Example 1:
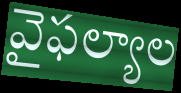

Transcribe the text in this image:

వైఫల్యాల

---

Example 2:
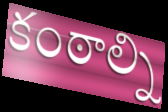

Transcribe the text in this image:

కంఠాల్ని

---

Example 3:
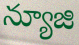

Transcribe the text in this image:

న్యూజి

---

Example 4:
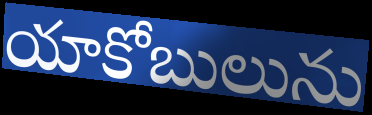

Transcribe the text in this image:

యాకోబులును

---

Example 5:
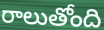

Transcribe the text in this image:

రాలుతోంది